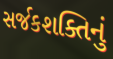
સર્જકશક્તિનું